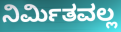
ನಿರ್ಮಿತವಲ್ಲ